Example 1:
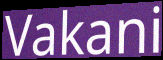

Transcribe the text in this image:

Vakani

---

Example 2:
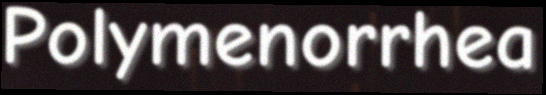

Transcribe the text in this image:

Polymenorrhea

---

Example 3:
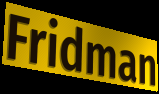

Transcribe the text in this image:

Fridman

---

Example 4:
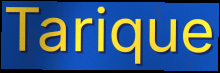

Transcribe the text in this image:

Tarique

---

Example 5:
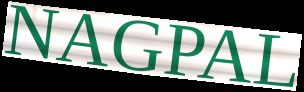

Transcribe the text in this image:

NAGPAL